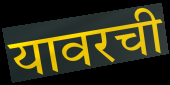
यावरची